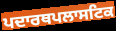
ਪਦਾਰਥਪਲਾਸਟਿਕ